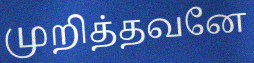
முறித்தவனே